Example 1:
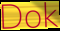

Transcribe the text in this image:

Dok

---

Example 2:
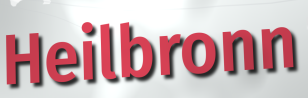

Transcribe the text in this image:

Heilbronn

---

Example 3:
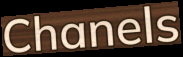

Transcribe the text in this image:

Chanels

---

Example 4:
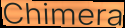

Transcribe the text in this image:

Chimera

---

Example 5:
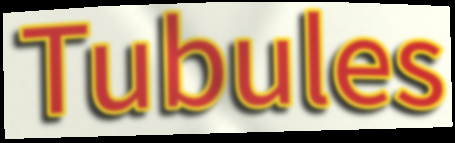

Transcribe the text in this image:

Tubules